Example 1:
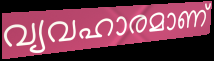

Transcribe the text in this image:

വ്യവഹാരമാണ്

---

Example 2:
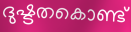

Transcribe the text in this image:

ദുഷ്ടതകൊണ്ട്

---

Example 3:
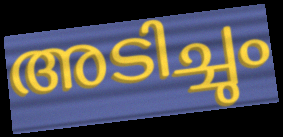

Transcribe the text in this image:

അടിച്ചും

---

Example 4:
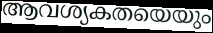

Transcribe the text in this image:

ആവശ്യകതയെയും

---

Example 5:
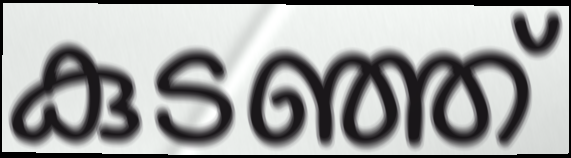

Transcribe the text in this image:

കുടഞ്ഞ്